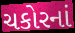
ચકોરનાં